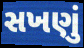
સખણું